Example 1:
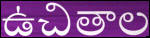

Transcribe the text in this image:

ఉచితాల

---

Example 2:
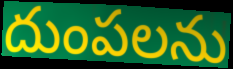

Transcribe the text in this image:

దుంపలను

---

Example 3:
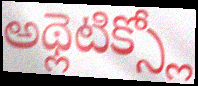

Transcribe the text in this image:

అథ్లెటిక్స్లో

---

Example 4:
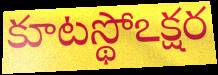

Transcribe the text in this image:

కూటస్థోఽక్షర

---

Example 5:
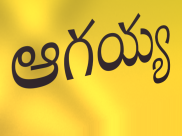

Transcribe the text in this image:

ఆగయ్య